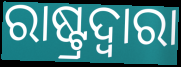
ରାଷ୍ଟ୍ରଦ୍ଵାରା